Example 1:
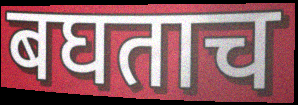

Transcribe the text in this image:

बघताच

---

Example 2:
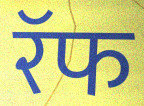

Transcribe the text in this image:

रॅफ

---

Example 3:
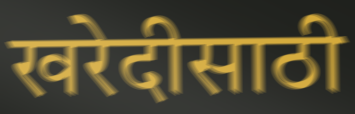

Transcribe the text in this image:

खरेदीसाठी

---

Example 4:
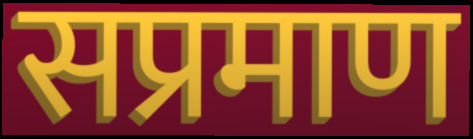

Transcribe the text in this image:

सप्रमाण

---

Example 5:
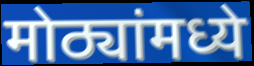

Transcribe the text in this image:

मोठ्यांमध्ये